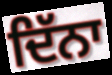
ਦਿੱਨਾ